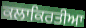
ਕਲਾਕਿਰਤੀਆ